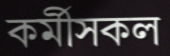
কৰ্মীসকল